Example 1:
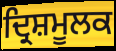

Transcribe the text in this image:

ਦ੍ਰਿਸ਼ਮੂਲਕ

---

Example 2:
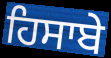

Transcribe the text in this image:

ਹਿਸਾਬੇ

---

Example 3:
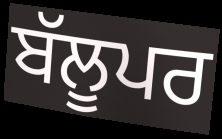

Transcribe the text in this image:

ਬੱਲੂਪਰ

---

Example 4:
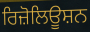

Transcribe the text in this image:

ਰਿਜ਼ੋਲਿਊਸ਼ਨ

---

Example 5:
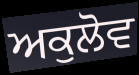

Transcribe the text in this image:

ਅਕੁਲੋਵ